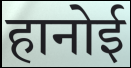
हानोई